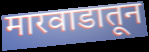
मारवाडातून